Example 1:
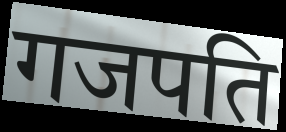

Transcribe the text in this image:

गजपति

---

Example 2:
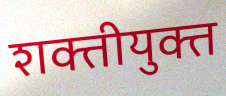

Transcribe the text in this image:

शक्तीयुक्त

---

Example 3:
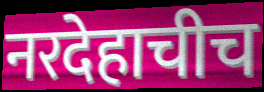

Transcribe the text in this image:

नरदेहाचीच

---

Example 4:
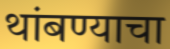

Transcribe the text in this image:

थांबण्याचा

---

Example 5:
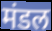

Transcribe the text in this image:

मंडल